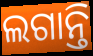
ଲଗାନ୍ତି